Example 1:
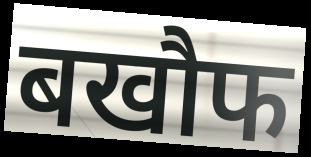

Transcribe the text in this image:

बखौफ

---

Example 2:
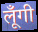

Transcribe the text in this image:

लूँगी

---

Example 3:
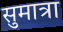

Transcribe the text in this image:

सुमात्रा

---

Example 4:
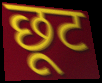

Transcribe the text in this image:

छूट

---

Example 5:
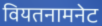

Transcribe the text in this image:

वियतनामनेट